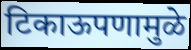
टिकाऊपणामुळे